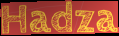
Hadza